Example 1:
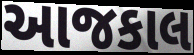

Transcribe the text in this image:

આજકાલ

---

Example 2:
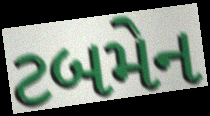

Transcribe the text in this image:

ટબમેન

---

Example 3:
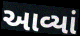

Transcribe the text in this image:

આવ્યાં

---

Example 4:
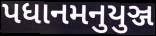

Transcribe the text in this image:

પધાનમનુયુઞ્જ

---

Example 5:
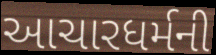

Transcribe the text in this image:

આચારધર્મની